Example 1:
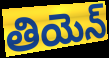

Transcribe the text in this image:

తియెన్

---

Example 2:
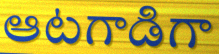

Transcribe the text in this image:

ఆటగాడిగా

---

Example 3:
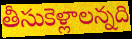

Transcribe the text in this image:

తీసుకెళ్లాలన్నది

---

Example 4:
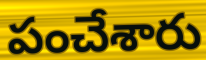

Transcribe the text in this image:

పంచేశారు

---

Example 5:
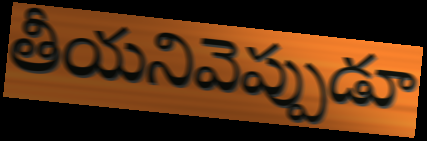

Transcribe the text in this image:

తీయనివెప్పుడూ